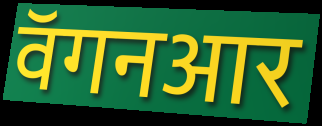
वॅगनआर